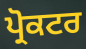
ਪ੍ਰੋਕਟਰ